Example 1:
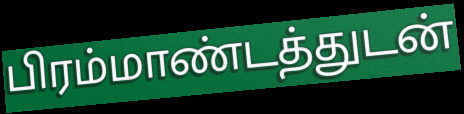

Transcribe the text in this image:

பிரம்மாண்டத்துடன்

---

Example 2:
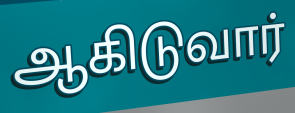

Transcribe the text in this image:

ஆகிடுவார்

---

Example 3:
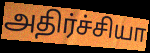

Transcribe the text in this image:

அதிர்ச்சியா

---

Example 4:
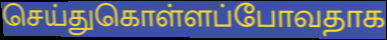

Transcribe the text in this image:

செய்துகொள்ளப்போவதாக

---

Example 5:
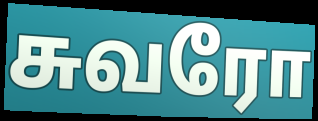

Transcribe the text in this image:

சுவரோ